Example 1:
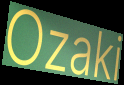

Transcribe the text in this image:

Ozaki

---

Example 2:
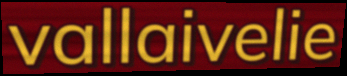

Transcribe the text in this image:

vallaivelie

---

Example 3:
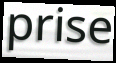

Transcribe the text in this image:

prise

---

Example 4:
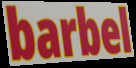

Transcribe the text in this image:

barbel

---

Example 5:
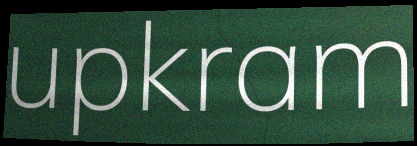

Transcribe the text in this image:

upkram